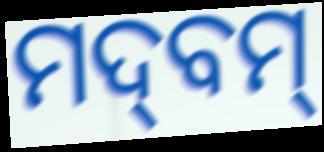
ମଦ୍‌ବମ୍